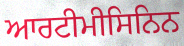
ਆਰਟੀਮੀਸਿਨਿਨ